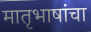
मातृभाषांचा